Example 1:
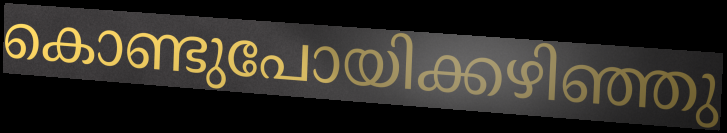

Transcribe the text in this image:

കൊണ്ടുപോയിക്കഴിഞ്ഞു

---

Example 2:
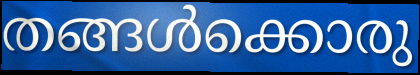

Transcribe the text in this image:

തങ്ങൾക്കൊരു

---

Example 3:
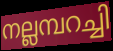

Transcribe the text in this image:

നല്ലമ്പറച്ചി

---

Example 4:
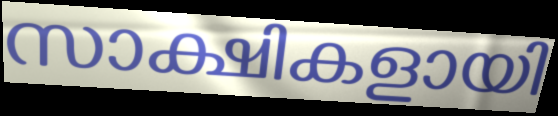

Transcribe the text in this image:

സാക്ഷികളായി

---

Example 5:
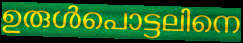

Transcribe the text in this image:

ഉരുൾപൊട്ടലിനെ